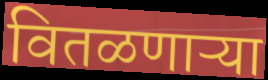
वितळणाऱ्या